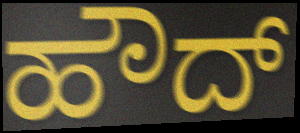
ಹೌದ್